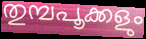
തുമ്പപൂക്കളും